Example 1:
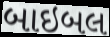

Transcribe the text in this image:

બાઇબલ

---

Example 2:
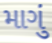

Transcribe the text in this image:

માગું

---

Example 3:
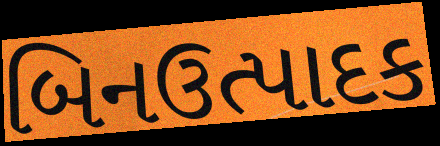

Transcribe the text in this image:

બિનઉત્પાદક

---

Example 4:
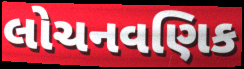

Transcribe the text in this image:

લોચનવણિક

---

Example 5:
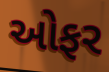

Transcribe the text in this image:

ઓફર